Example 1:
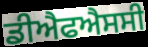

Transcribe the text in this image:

ਡੀਐਫਐਸਸੀ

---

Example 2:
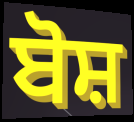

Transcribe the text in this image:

ਬੋਸ਼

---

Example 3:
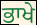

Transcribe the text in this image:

ਭਾਖੇ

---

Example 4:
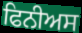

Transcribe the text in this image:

ਫਿਨੀਅਸ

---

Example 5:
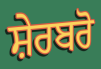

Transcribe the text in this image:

ਸ਼ੇਰਬਰੋ